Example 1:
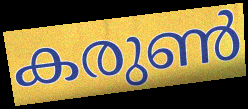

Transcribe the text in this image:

കരുൺ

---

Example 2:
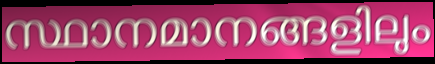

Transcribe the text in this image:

സ്ഥാനമാനങ്ങളിലും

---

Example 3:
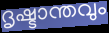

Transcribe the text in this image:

ദൃഷ്ടാന്തവും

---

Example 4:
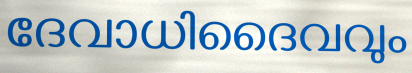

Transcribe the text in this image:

ദേവാധിദൈവവും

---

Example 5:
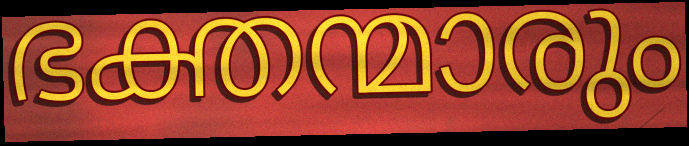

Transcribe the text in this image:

ഭക്തന്മാരും